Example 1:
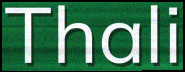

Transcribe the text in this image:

Thali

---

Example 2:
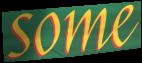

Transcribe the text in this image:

some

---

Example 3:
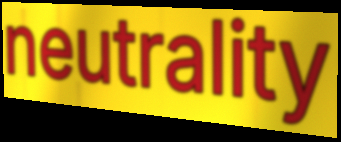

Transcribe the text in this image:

neutrality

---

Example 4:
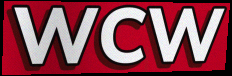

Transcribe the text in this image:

WCW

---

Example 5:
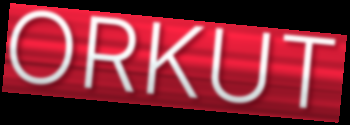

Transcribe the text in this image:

ORKUT